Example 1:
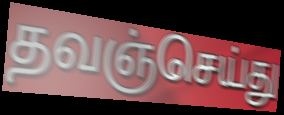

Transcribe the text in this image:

தவஞ்செய்து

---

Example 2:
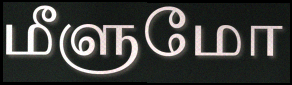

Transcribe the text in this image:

மீளுமோ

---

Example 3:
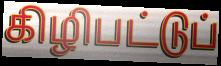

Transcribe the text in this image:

கிழிபட்டுப்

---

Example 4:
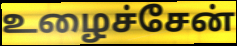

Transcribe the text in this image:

உழைச்சேன்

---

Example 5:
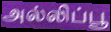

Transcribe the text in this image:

அல்லிப்பூ